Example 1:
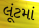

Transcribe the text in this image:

લૂંટમાં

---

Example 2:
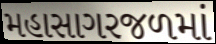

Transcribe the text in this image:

મહાસાગરજળમાં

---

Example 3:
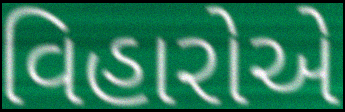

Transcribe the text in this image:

વિહારોએ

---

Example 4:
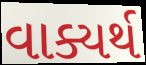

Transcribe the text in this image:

વાક્યર્થ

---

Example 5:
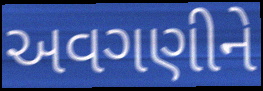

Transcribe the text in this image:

અવગણીને